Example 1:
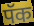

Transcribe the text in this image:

पॅक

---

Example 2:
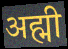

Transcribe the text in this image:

अह्मी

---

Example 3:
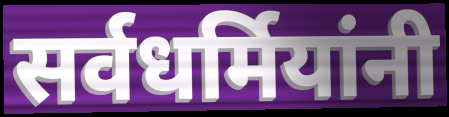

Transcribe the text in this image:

सर्वधर्मियांनी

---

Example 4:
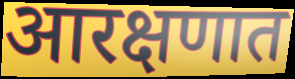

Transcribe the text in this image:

आरक्षणात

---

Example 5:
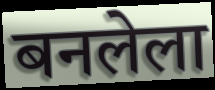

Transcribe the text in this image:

बनलेला